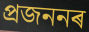
প্ৰজননৰ